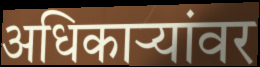
अधिकाऱ्यांवर